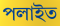
পলাইত